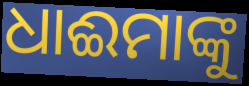
ଧାଈମାଙ୍କୁ